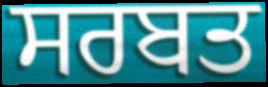
ਸਰਬਤ